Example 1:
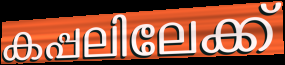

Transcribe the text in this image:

കപ്പലിലേക്ക്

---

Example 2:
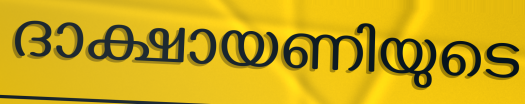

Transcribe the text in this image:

ദാക്ഷായണിയുടെ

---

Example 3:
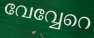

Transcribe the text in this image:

വേവ്വേറെ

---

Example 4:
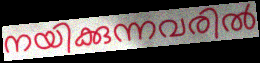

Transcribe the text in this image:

നയിക്കുന്നവരിൽ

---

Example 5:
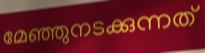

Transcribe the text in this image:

മേഞ്ഞുനടക്കുന്നത്